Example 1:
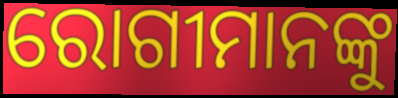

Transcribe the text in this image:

ରୋଗୀମାନଙ୍କୁ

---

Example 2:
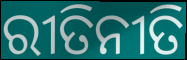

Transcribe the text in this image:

ରୀତିନୀତି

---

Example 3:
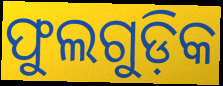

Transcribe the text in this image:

ଫୁଲଗୁଡ଼ିକ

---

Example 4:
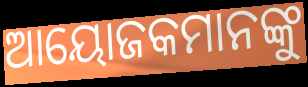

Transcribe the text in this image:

ଆୟୋଜକମାନଙ୍କୁ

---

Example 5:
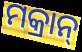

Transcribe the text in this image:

ମକ୍ରାନ୍